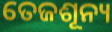
ତେଜଶୂନ୍ୟ